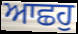
ਆਛਹੁ